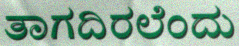
ತಾಗದಿರಲೆಂದು